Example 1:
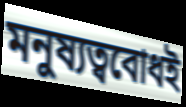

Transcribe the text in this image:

মনুষ্যত্ববোধই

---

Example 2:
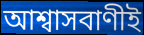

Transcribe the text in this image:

আশ্বাসবাণীই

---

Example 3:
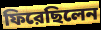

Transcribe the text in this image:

ফিরেছিলেন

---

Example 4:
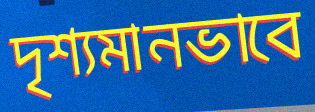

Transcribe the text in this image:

দৃশ্যমানভাবে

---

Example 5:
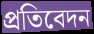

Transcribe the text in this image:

প্রতিবেদন